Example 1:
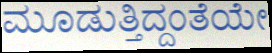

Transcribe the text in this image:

ಮೂಡುತ್ತಿದ್ದಂತೆಯೇ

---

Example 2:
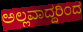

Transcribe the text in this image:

ಅಲ್ಲವಾದ್ದರಿಂದ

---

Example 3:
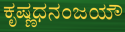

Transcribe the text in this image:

ಕೃಷ್ಣಧನಂಜಯೌ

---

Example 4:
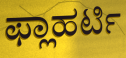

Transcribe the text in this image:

ಫ್ಲಾಹರ್ಟಿ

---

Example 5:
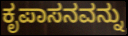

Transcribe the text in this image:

ಕೃಪಾಸನವನ್ನು